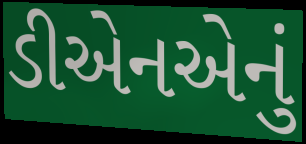
ડીએનએનું